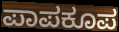
ಪಾಪಕೂಪ